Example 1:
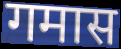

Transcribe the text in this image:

गमास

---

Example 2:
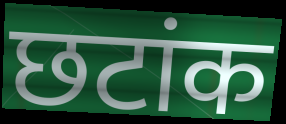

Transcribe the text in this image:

छटांक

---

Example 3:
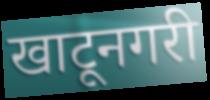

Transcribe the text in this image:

खाटूनगरी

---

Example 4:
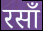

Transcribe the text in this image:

रसाँ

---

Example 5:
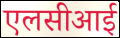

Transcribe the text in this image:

एलसीआई